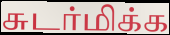
சுடர்மிக்க